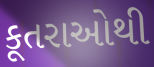
કૂતરાઓથી